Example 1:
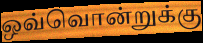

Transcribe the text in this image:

ஒவ்வொன்றுக்கு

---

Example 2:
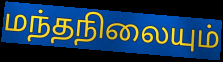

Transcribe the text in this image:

மந்தநிலையும்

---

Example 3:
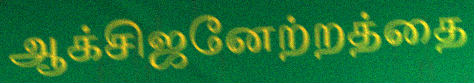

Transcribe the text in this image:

ஆக்சிஜனேற்றத்தை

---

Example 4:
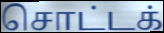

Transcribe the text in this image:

சொட்டக்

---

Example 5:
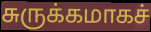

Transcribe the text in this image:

சுருக்கமாகச்